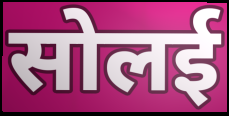
सोलई